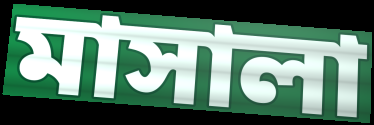
মাসালা